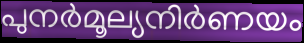
പുനർമൂല്യനിർണയം